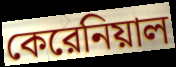
কেরেনিয়াল